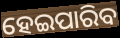
ହେଇପାରିବ